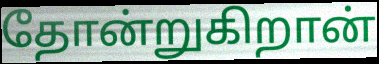
தோன்றுகிறான்